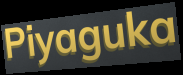
Piyaguka